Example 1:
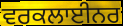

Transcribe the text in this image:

ਵਰਕਲਾਈਨਰ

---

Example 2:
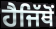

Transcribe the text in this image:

ਹੈਜਿੱਥੋਂ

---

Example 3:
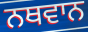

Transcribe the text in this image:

ਨਥਵਾਨ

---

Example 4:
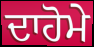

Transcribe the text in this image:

ਦਾਹੋਮੇ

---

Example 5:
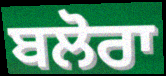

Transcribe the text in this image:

ਬਲੋਰਾ